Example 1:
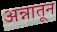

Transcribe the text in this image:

अन्नातून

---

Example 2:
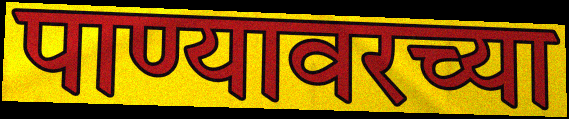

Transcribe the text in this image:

पाण्यावरच्या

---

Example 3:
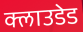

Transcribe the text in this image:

क्लाउडेड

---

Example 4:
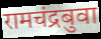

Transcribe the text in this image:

रामचंद्रबुवा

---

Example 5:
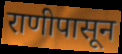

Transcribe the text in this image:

राणीपासून